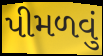
પીમળવું